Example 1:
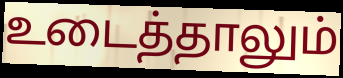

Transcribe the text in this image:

உடைத்தாலும்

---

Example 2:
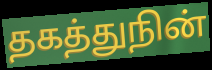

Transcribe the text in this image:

தகத்துநின்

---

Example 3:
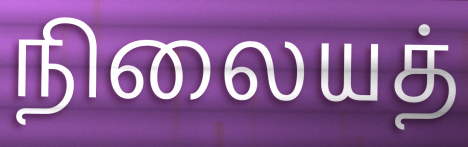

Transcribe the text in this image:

நிலையத்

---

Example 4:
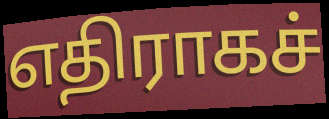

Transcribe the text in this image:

எதிராகச்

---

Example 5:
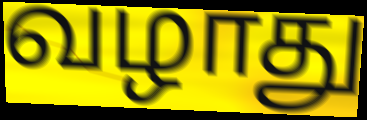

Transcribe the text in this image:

வழாது